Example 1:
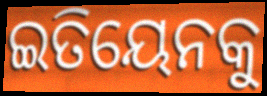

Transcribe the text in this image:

ଇତିୟେନକୁ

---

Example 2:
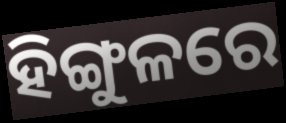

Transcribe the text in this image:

ହିଙ୍ଗୁଳରେ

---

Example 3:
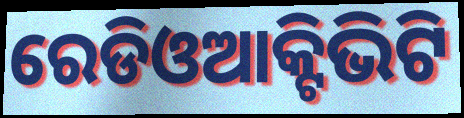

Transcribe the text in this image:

ରେଡିଓଆକ୍ଟିଭିଟି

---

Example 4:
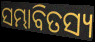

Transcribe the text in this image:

ସମ୍ଭାବିତସ୍ୟ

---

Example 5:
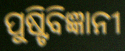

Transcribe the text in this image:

ପୁଷ୍ଟିବିଜ୍ଞାନୀ